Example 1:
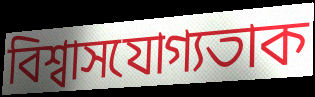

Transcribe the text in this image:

বিশ্বাসযোগ্যতাক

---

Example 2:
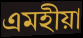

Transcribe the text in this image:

এমহীয়া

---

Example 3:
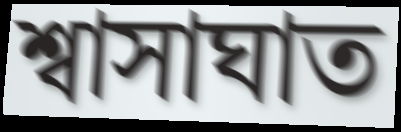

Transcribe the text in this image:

শ্বাসাঘাত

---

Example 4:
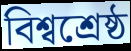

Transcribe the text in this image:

বিশ্বশ্ৰেষ্ঠ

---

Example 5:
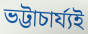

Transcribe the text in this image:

ভট্টাচাৰ্য্যই